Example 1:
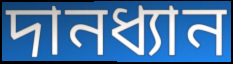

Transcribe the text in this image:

দানধ্যান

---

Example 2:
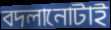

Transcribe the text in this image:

বদলানোটাই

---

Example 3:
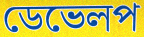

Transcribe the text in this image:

ডেভেলপ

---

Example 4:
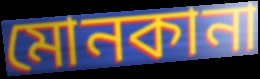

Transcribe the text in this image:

মোনকানা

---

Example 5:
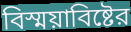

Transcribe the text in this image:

বিস্ময়াবিষ্টের